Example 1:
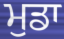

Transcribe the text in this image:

ਮੁਡਾ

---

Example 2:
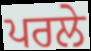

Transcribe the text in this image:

ਪਰਲੇ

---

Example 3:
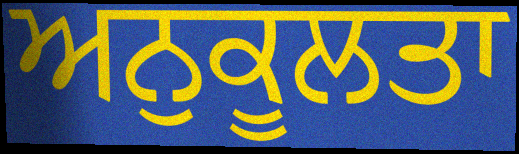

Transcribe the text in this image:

ਅਨੁਕੂਲਤਾ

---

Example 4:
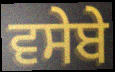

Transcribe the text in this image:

ਵਸੇਬੇ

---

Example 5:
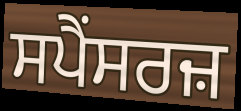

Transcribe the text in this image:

ਸਪੈਂਸਰਜ਼